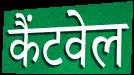
कैंटवेल